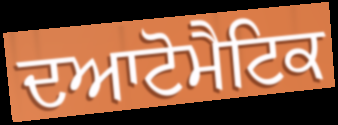
ਦਆਟੋਮੈਟਿਕ